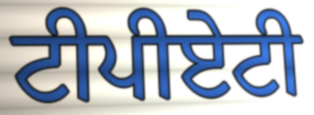
ਟੀਪੀਏਟੀ